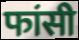
फांसी